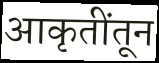
आकृतींतून